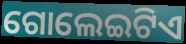
ଗୋଲେଇଟିଏ